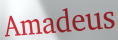
Amadeus